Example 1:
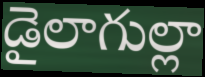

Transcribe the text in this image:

డైలాగుల్లా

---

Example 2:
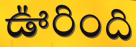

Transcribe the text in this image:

ఊరింది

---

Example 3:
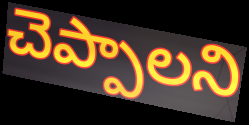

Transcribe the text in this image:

చెప్పాలని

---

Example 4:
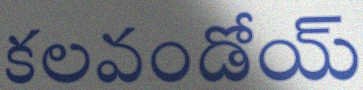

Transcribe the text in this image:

కలవండోయ్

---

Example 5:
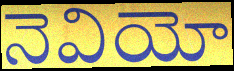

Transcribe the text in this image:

నెవియో